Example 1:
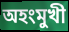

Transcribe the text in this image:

অহংমুখী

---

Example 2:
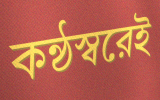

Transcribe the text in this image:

কন্ঠস্বরেই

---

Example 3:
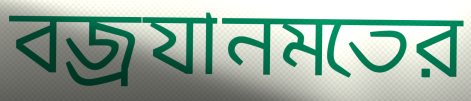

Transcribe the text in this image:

বজ্রযানমতের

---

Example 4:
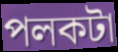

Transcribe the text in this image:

পলকটা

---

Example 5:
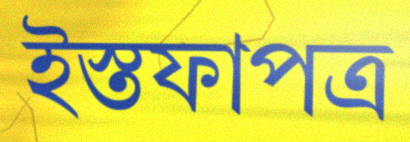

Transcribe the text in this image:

ইস্তফাপত্র